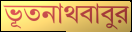
ভূতনাথবাবুর